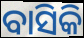
ବାସିକି